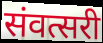
संवत्सरी